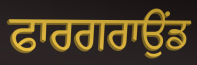
ਫਾਰਗਰਾਉਂਡ